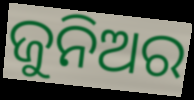
ଜୁନିଅର